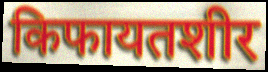
किफायतशीर